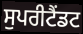
ਸੁਪਰੀਟੈਂਡਟ